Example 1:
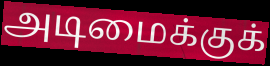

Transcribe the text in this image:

அடிமைக்குக்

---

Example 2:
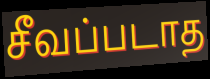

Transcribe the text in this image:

சீவப்படாத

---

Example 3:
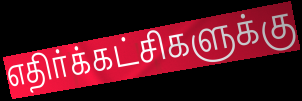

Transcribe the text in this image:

எதிர்க்கட்சிகளுக்கு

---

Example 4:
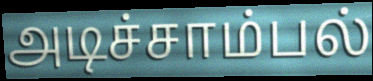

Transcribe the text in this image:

அடிச்சாம்பல்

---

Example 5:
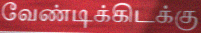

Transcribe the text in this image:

வேண்டிக்கிடக்கு